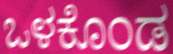
ಒಳಕೊಂಡ